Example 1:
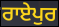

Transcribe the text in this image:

ਰਾਏਪੁਰ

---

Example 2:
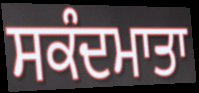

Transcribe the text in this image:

ਸਕੰਦਮਾਤਾ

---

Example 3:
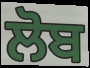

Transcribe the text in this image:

ਲੋਬ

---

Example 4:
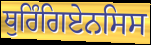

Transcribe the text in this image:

ਥੁਰਿੰਗਿਏਨਸਿਸ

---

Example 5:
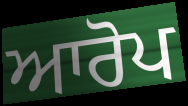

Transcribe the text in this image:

ਆਰੋਪ